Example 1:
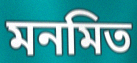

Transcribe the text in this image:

মনমিত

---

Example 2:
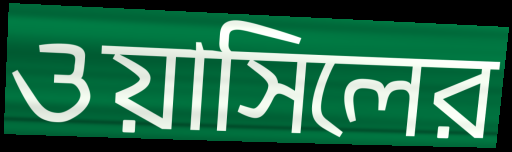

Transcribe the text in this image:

ওয়াসিলের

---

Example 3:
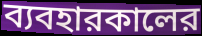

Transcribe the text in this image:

ব্যবহারকালের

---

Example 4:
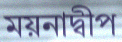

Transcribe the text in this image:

ময়নাদ্বীপ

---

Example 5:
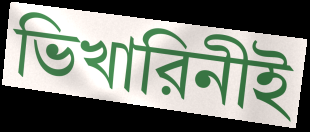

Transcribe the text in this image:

ভিখারিনীই